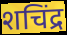
शचिंद्र